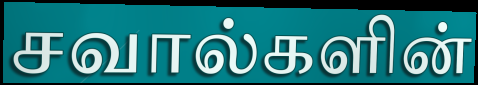
சவால்களின்